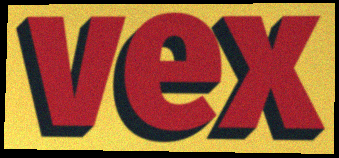
vex